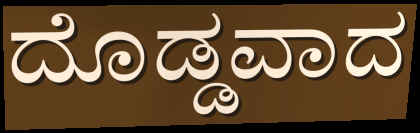
ದೊಡ್ಡವಾದ